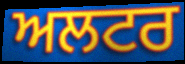
ਅਲਟਰ